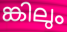
ങ്കിലും